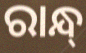
ରାନ୍ଧ୍